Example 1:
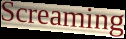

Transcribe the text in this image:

Screaming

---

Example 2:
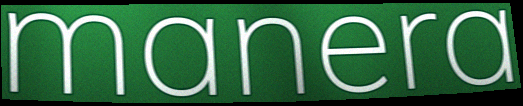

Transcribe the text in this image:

manera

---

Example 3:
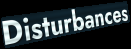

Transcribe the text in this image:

Disturbances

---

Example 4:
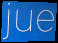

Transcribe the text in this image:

jue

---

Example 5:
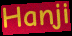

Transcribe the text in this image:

Hanji